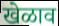
खेळाव